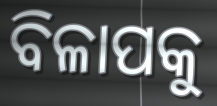
ବିଳାପକୁ